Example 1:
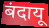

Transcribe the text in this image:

बंदायू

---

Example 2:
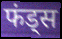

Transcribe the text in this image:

फंड्स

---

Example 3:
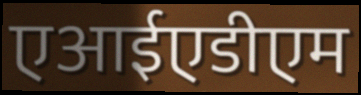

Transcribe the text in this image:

एआईएडीएम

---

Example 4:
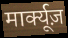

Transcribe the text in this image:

मार्क्यूज़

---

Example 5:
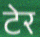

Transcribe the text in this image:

टेर